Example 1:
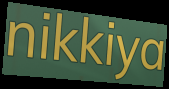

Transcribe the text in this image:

nikkiya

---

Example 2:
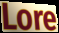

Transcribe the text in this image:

Lore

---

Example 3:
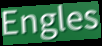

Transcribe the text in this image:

Engles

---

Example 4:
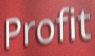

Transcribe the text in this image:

Profit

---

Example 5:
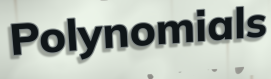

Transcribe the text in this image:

Polynomials